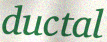
ductal